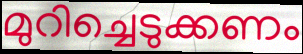
മുറിച്ചെടുക്കണം